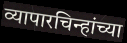
व्यापारचिन्हांच्या